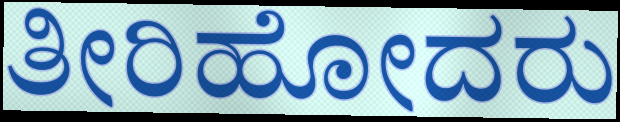
ತೀರಿಹೋದರು